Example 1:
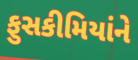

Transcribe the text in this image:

ફુસકીમિયાંને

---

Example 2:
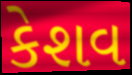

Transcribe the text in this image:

કેશવ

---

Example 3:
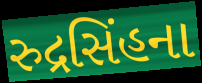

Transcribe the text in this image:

રુદ્રસિંહના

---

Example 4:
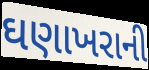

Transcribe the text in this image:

ઘણાખરાની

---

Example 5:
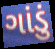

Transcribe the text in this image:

ગાંડું